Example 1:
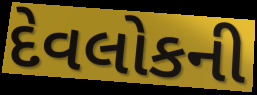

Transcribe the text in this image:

દેવલોકની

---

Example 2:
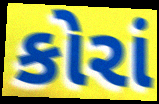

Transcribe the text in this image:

કોરાં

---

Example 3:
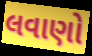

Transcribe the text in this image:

લવાણો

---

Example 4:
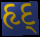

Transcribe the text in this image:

હૃદ્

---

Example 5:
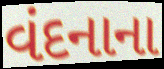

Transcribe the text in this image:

વંદનાના